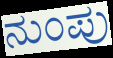
ನುಂಪು